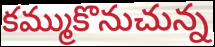
కమ్ముకొనుచున్న